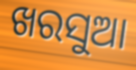
ଖରସୁଆ